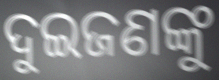
ଦୁଇଜଣଙ୍କୁ